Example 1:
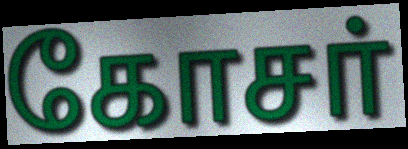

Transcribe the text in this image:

கோசர்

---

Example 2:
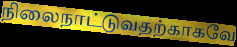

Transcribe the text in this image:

நிலைநாட்டுவதற்காகவே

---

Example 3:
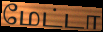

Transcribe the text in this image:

மேட்டா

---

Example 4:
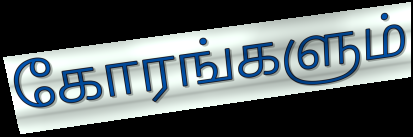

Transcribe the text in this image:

கோரங்களும்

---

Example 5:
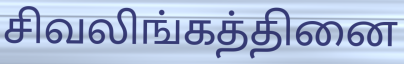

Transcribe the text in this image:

சிவலிங்கத்தினை